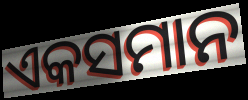
ଏକସମାନ